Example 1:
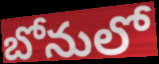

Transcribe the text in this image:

బోనులో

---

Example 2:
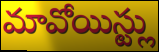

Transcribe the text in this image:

మావోయిస్ట్లు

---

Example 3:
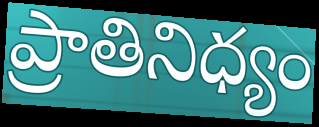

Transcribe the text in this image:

ప్రాతినిధ్యం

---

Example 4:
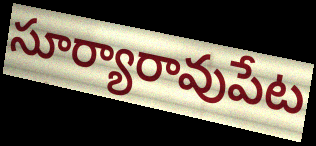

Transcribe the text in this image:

సూర్యారావుపేట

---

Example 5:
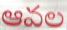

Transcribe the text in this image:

ఆవల